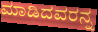
ಮಾಡಿದವರನ್ನ